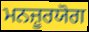
ਮਨਜ਼ੂਰਯੋਗ